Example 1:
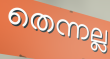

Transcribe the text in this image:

തെന്നല്ല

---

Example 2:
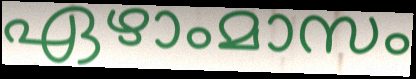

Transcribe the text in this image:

ഏഴാംമാസം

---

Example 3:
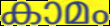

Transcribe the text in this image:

കാമം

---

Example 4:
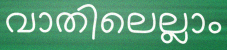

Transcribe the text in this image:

വാതിലെല്ലാം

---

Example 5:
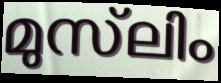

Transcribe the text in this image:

മുസ്‌ലിം